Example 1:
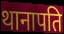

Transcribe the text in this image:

थानापति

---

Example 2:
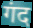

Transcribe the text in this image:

गंद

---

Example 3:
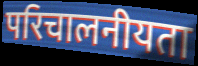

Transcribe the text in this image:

परिचालनीयता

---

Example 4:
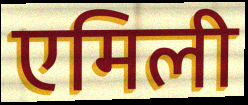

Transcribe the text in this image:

एमिली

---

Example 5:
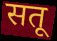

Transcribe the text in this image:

सतू